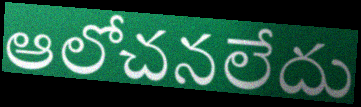
ఆలోచనలేదు